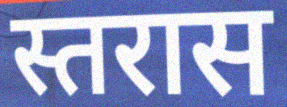
स्तरास